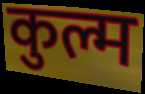
कुल्म